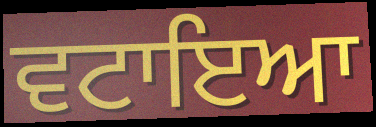
ਵਟਾਇਆ